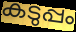
കടുപ്പം